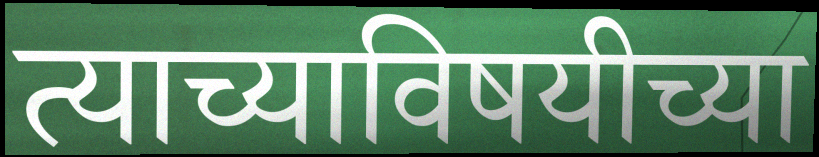
त्याच्याविषयीच्या